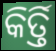
କିର୍ତ୍ତି